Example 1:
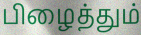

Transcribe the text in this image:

பிழைத்தும்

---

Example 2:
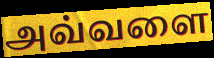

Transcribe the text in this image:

அவ்வளை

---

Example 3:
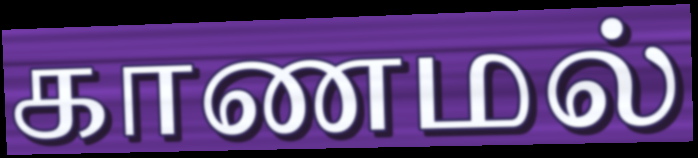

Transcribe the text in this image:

காணமல்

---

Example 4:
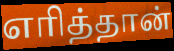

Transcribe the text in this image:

எரித்தான்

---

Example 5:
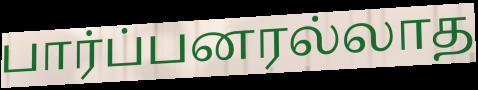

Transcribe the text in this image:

பார்ப்பனரல்லாத